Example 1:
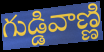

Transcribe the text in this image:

గుడ్డివాణ్ణి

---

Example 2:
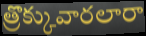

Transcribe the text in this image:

త్రొక్కువారలారా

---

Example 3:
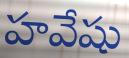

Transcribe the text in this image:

హవేషు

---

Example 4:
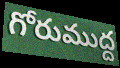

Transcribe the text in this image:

గోరుముద్ద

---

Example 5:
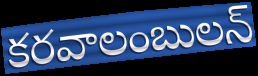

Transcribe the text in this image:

కరవాలంబులన్